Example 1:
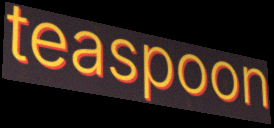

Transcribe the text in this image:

teaspoon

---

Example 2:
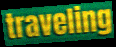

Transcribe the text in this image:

traveling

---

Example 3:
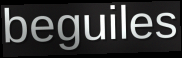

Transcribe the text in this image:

beguiles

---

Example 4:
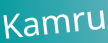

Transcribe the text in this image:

Kamru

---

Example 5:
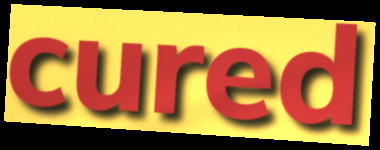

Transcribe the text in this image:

cured